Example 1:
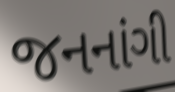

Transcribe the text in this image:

જનનાંગી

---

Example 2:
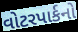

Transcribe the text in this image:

વોટરપાર્કનો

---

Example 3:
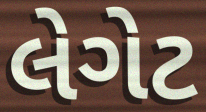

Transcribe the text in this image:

લેગેટ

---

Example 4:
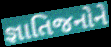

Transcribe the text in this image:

જ્ઞાતિજનોને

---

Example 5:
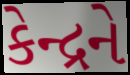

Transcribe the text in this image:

કેન્દ્રને